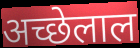
अच्छेलाल